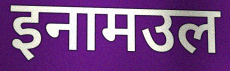
इनामउल